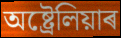
অষ্ট্ৰেলিয়াৰ